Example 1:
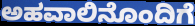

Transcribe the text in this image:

ಅಹವಾಲಿನೊಂದಿಗೆ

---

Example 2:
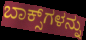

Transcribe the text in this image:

ಬಾಕ್ಸ್‌ಗಳನ್ನು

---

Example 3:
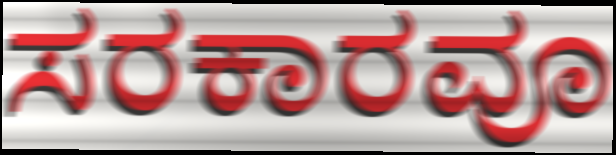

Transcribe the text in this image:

ಸರಕಾರವೂ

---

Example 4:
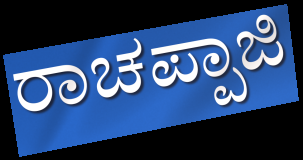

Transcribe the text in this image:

ರಾಚಪ್ಪಾಜಿ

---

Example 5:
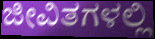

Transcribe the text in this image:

ಜೀವಿತಗಳಲ್ಲಿ